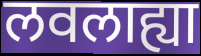
लवलाह्या